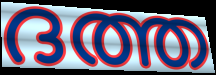
ദത്ത